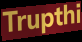
Trupthi